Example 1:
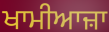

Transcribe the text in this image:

ਖਾਮੀਆਜ਼ਾ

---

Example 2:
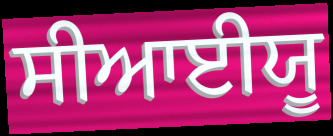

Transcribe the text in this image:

ਸੀਆਈਯੂ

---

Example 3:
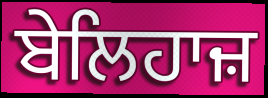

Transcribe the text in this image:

ਬੇਲਿਹਾਜ਼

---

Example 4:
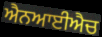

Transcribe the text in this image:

ਐਨਆਈਐਚ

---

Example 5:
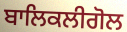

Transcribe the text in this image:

ਬਾਲਿਕਲੀਗੋਲ